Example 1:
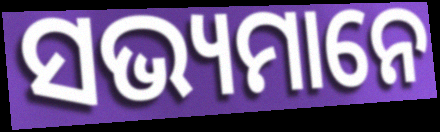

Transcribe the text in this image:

ସଭ୍ୟମାନେ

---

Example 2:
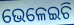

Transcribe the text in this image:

ଭେଳେଇଚି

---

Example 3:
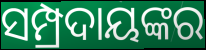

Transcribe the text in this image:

ସମ୍ପ୍ରଦାୟଙ୍କର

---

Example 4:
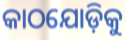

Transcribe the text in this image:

କାଠଯୋଡ଼ିକୁ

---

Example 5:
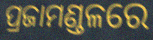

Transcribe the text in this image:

ପ୍ରଜାମଣ୍ଡଳରେ